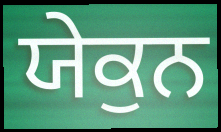
ਯੇਕੁਨ